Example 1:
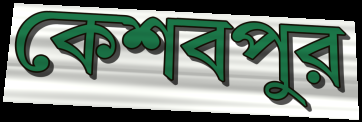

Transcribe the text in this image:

কেশবপুর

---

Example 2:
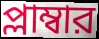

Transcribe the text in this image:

প্লাম্বার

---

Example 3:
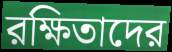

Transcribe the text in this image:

রক্ষিতাদের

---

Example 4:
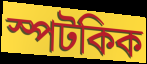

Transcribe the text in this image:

স্পটকিক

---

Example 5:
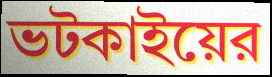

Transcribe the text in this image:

ভটকাইয়ের